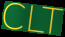
CLT